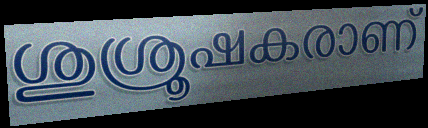
ശുശ്രൂഷകരാണ്